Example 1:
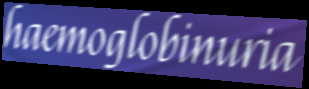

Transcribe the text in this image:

haemoglobinuria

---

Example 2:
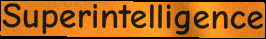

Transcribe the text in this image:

Superintelligence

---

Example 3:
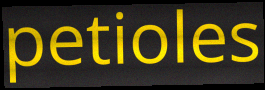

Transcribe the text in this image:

petioles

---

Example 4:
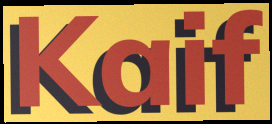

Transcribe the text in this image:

Kaif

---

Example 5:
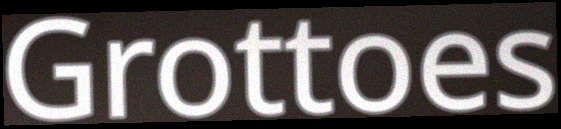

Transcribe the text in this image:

Grottoes